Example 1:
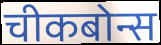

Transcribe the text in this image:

चीकबोन्स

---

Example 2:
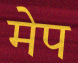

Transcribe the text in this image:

मेप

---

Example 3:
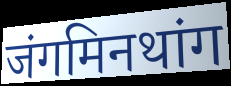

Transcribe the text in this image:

जंगमिनथांग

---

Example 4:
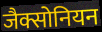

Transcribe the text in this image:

जैक्सोनियन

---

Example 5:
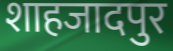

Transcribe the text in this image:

शाहजादपुर